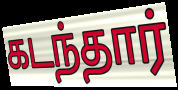
கடந்தார்